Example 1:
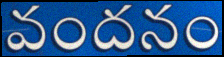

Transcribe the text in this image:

వందనం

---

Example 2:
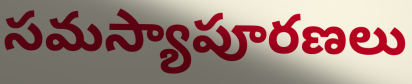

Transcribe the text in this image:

సమస్యాపూరణలు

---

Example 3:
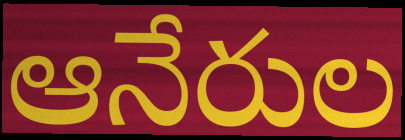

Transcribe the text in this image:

ఆనేరుల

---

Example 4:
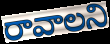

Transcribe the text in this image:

రావాలని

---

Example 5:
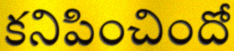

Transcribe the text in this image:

కనిపించిందో